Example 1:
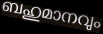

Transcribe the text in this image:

ബഹുമാനവും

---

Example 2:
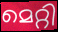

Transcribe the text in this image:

മെറ്റി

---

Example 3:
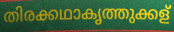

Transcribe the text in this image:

തിരക്കഥാകൃത്തുക്കള്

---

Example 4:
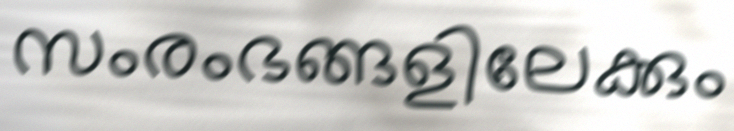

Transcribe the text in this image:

സംരംഭങ്ങളിലേക്കും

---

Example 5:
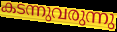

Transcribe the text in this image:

കടന്നുവരുന്നു